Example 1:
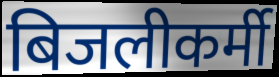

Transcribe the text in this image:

बिजलीकर्मी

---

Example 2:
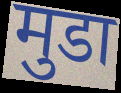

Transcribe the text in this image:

मुडा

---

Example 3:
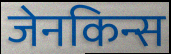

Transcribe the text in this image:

जेनकिन्स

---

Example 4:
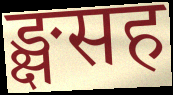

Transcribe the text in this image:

ङ्क्षसह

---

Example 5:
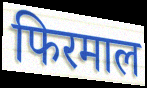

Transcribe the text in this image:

फिरमाल